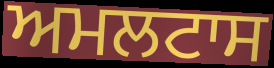
ਅਮਲਟਾਸ